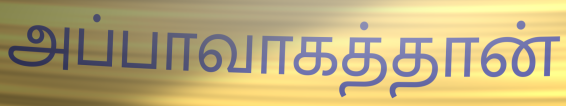
அப்பாவாகத்தான்